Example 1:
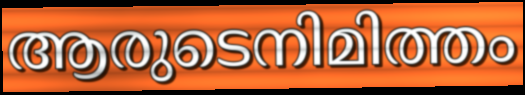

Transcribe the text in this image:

ആരുടെനിമിത്തം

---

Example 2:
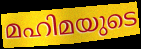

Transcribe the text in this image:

മഹിമയുടെ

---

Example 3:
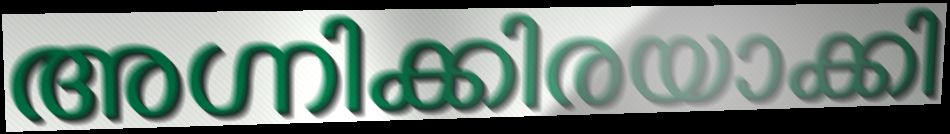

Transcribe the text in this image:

അഗ്നിക്കിരയാക്കി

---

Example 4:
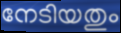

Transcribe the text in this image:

നേടിയതും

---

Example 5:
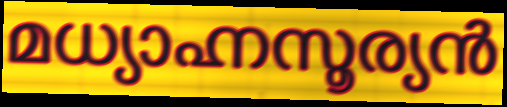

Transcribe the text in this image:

മധ്യാഹ്നസൂര്യൻ